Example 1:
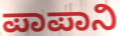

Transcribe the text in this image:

ಪಾಪಾನಿ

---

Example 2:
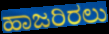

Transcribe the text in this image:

ಹಾಜರಿರಲು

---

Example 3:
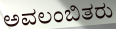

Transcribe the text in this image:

ಅವಲಂಬಿತರು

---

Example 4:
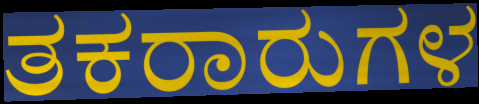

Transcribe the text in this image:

ತಕರಾರುಗಳ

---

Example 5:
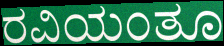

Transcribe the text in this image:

ರವಿಯಂತೂ